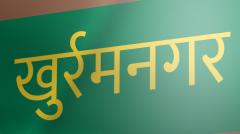
खुर्रमनगर